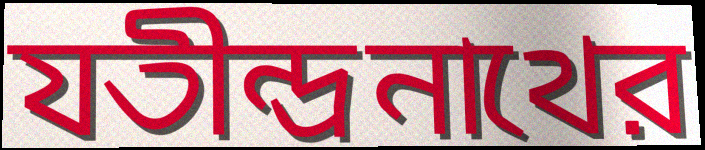
যতীন্দ্রনাথের